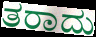
ತರಾದು